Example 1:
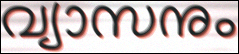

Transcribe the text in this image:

വ്യാസനും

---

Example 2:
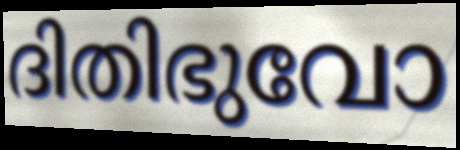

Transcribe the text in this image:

ദിതിഭുവോ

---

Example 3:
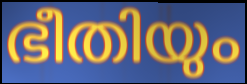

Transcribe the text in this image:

ഭീതിയും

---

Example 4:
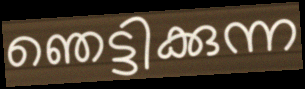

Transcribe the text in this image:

ഞെട്ടിക്കുന്ന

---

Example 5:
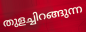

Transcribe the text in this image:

തുളച്ചിറങ്ങുന്ന